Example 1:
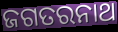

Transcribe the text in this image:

ଜଗତରନାଥ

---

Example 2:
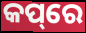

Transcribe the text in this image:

କପ୍‌ରେ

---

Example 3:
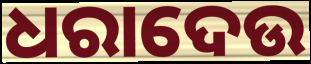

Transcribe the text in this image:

ଧରାଦେଉ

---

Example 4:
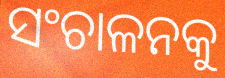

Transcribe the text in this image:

ସଂଚାଳନକୁ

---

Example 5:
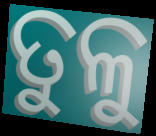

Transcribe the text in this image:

ତୁଳୁ